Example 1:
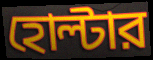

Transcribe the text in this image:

হোল্টার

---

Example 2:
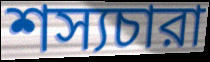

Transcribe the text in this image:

শস্যচারা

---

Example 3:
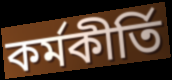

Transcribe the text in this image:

কর্মকীর্তি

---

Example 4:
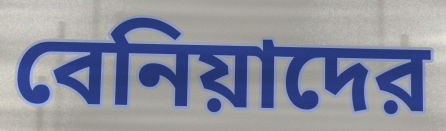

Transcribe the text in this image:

বেনিয়াদের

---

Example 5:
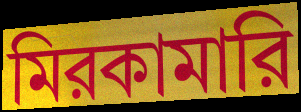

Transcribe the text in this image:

মিরকামারি